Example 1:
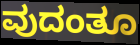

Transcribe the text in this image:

ವುದಂತೂ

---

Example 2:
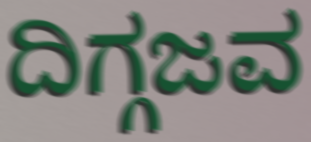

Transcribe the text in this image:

ದಿಗ್ಗಜವ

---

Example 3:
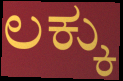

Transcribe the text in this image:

ಲಕ್ಕು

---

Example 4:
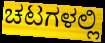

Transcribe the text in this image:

ಚಟಗಳಲ್ಲಿ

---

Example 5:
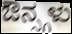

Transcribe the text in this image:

ಔನ್ಸ್ಗಳು